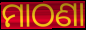
ମାଠଣା